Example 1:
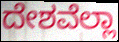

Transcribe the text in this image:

ದೇಶವೆಲ್ಲಾ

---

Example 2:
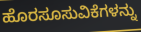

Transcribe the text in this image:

ಹೊರಸೂಸುವಿಕೆಗಳನ್ನು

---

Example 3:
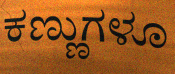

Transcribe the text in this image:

ಕಣ್ಣುಗಳೂ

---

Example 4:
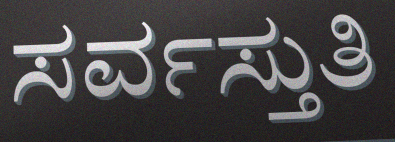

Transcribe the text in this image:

ಸರ್ವಸ್ತುತಿ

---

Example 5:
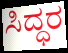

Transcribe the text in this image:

ಸಿದ್ಧರ